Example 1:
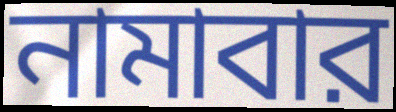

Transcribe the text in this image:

নামাবার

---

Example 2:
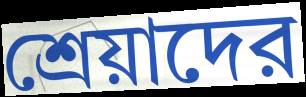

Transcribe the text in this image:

শ্রেয়াদের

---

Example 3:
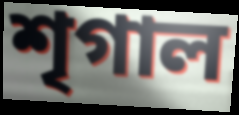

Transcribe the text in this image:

শৃগাল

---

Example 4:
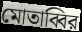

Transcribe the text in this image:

মোতাব্বির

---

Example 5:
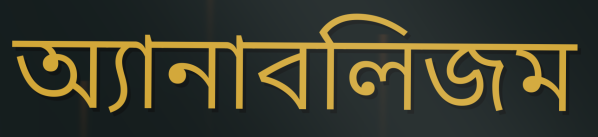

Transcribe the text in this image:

অ্যানাবলিজম